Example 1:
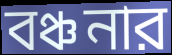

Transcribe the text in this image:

বঞ্চনার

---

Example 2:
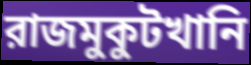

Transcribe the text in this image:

রাজমুকুটখানি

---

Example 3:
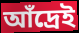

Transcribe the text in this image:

আঁদ্রেই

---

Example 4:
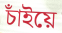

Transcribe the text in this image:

চাঁইয়ে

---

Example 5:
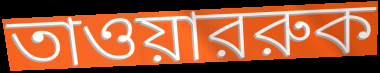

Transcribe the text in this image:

তাওয়াররুক